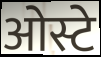
ओस्टे